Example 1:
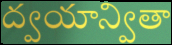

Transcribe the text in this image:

ద్వయాన్వితా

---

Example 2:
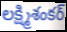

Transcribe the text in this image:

లక్ష్మిశంకర్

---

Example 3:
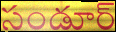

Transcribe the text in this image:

సండూర్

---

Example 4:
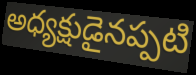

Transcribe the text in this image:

అధ్యక్షుడైనప్పటి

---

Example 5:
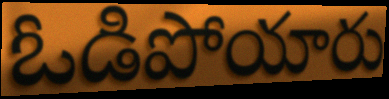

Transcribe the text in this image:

ఓడిపోయారు